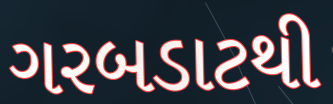
ગરબડાટથી